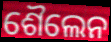
ଶୈଲେନ